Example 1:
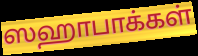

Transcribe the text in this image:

ஸஹாபாக்கள்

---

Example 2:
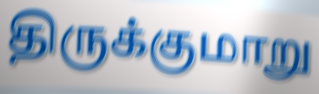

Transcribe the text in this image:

திருக்குமாறு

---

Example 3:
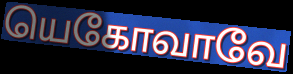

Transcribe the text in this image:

யெகோவாவே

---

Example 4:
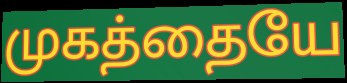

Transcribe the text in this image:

முகத்தையே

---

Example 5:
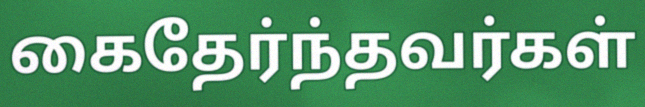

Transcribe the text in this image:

கைதேர்ந்தவர்கள்